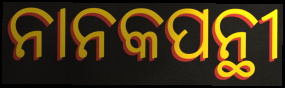
ନାନକପନ୍ଥୀ